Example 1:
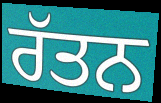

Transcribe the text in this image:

ਰੱਤਨ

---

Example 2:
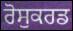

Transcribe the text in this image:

ਰੋਸੁਕਰਡ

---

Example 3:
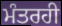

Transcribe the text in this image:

ਮੰਤਰਹੀ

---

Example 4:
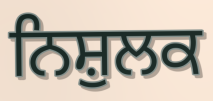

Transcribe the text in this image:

ਨਿਸ਼ੁਲਕ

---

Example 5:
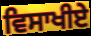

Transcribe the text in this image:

ਵਿਸਾਖੀਏੇ